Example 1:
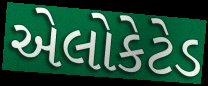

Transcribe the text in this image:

એલોકેટેડ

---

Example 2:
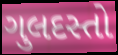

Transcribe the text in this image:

ગુલદસ્તો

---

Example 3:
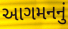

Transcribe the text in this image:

આગમનનું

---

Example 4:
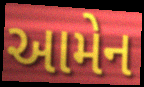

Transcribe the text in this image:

આમેન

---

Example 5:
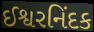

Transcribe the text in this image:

ઈશ્વરનિંદક